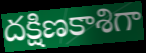
దక్షిణకాశిగా